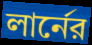
লার্নের